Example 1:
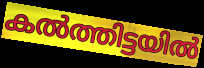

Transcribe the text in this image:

കൽത്തിട്ടയിൽ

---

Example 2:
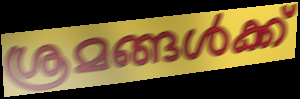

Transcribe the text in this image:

ശ്രമങ്ങൾക്ക്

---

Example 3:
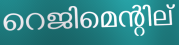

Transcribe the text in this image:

റെജിമെന്റില്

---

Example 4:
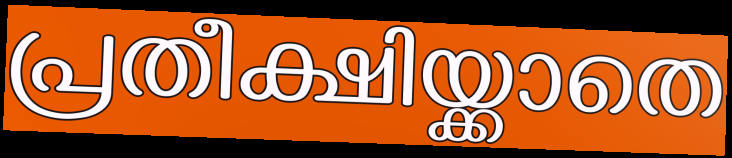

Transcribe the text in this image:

പ്രതീക്ഷിയ്ക്കാതെ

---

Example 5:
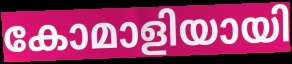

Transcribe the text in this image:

കോമാളിയായി